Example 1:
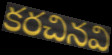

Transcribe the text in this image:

కరచినవి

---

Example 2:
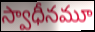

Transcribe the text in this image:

స్వాధీనమూ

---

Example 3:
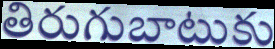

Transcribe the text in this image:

తిరుగుబాటుకు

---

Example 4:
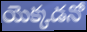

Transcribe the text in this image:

యెక్కడనో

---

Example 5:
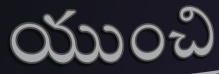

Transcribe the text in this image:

యుంచి